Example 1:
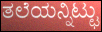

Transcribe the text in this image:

ತಲೆಯನ್ನಿಟ್ಟು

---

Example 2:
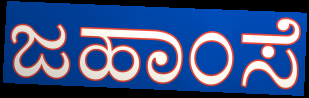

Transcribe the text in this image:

ಜಹಾಂಸೆ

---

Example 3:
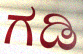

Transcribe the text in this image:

ಗಡಿ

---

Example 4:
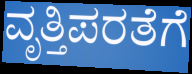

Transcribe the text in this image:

ವೃತ್ತಿಪರತೆಗೆ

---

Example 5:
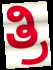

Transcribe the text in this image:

ತ್ರಿ